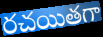
రచయితగా